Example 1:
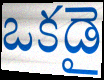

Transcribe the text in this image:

ఒకడై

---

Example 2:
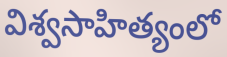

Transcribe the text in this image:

విశ్వసాహిత్యంలో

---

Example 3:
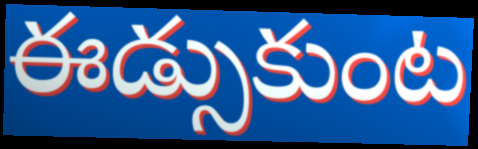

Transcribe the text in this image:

ఈడ్సుకుంట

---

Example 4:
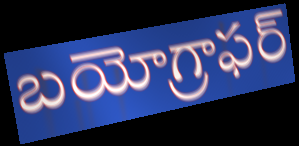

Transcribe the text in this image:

బయోగ్రాఫర్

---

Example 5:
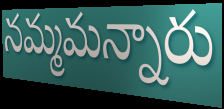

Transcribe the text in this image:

నమ్మమన్నారు